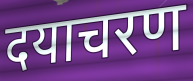
दयाचरण